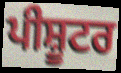
ਪੀਸ਼ੂਟਰ